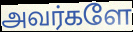
அவர்களே